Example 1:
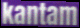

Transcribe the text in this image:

kantam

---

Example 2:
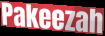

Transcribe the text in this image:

Pakeezah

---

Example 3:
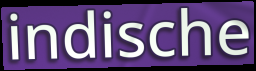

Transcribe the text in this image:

indische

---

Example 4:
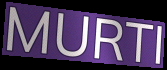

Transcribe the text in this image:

MURTI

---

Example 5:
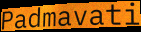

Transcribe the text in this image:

Padmavati